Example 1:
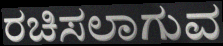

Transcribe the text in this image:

ರಚಿಸಲಾಗುವ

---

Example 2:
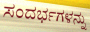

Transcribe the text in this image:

ಸಂದರ್ಭಗಳನ್ನು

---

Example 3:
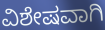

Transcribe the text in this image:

ವಿಶೇಷವಾಗಿ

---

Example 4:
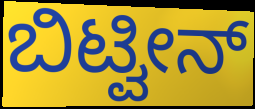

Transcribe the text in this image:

ಬಿಟ್ವೀನ್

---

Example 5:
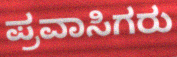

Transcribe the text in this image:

ಪ್ರವಾಸಿಗರು